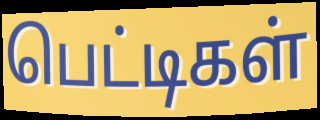
பெட்டிகள்